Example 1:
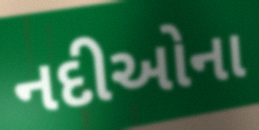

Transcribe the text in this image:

નદીઓના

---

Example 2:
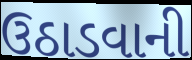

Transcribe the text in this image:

ઉઠાડવાની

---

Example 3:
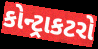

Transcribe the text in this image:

કોન્ટ્રાકટરો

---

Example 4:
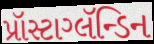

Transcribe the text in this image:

પ્રૉસ્ટાગ્લૅન્ડિન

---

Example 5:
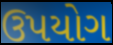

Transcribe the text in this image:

ઉપયોગ